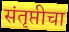
संतृप्तीचा